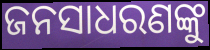
ଜନସାଧରଣଙ୍କୁ